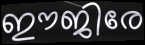
ഈജിരേ